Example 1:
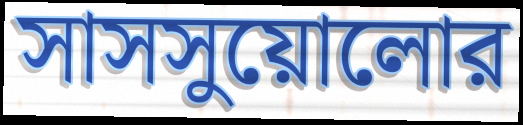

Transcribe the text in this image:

সাসসুয়োলোর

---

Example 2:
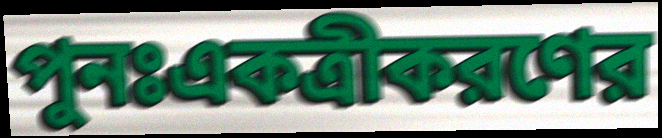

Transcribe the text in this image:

পুনঃএকত্রীকরণের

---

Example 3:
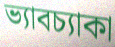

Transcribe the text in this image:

ভ্যাবচ্যাকা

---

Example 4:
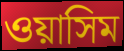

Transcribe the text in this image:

ওয়াসিম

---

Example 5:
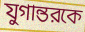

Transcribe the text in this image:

যুগান্তরকে